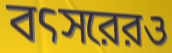
বৎসরেরও